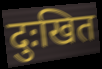
दुःखित